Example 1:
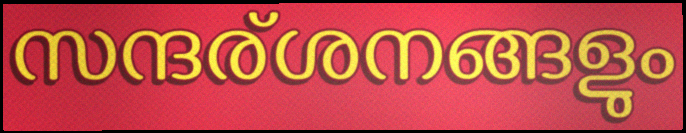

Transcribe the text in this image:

സന്ദര്ശനങ്ങളും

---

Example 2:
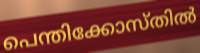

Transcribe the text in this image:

പെന്തിക്കോസ്തിൽ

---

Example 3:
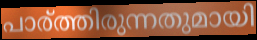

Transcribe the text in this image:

പാര്ത്തിരുന്നതുമായി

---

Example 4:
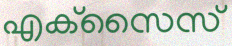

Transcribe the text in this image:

എക്‌സൈസ്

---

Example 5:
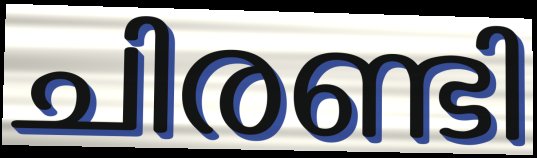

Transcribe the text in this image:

ചിരണ്ടി